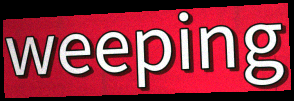
weeping